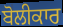
ਬੋਲੀਕਾਰ